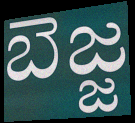
బెజ్జ